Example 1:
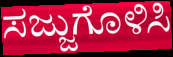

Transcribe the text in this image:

ಸಜ್ಜುಗೊಳಿಸಿ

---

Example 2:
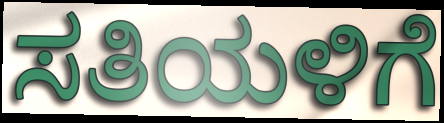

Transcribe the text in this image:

ಸತಿಯಳಿಗೆ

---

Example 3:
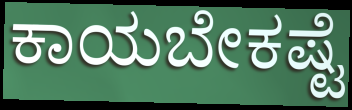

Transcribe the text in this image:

ಕಾಯಬೇಕಷ್ಟೆ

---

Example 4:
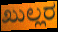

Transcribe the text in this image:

ಖುಲ್ಲರ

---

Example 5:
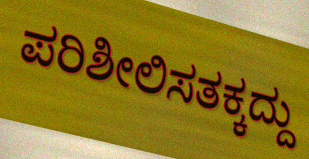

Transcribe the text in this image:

ಪರಿಶೀಲಿಸತಕ್ಕದ್ದು